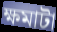
ক্ষমাটা